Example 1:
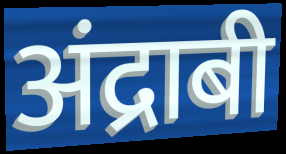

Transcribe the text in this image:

अंद्राबी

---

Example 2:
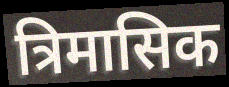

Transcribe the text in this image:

त्रिमासिक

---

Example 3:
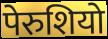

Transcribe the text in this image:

पेरुशियो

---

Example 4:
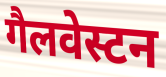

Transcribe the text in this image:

गैलवेस्टन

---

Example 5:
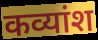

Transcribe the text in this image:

कव्यांश